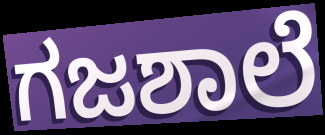
ಗಜಶಾಲೆ